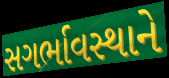
સગર્ભાવસ્થાને